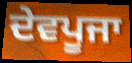
ਦੇਵਪੂਜਾ